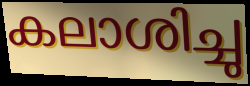
കലാശിച്ചു